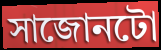
সাজোনটো